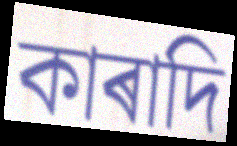
কাৰাদি